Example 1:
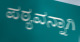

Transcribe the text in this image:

ಪಠ್ಯವನ್ನಾಗಿ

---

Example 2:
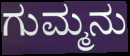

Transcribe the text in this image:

ಗುಮ್ಮನು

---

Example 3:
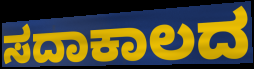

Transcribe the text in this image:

ಸದಾಕಾಲದ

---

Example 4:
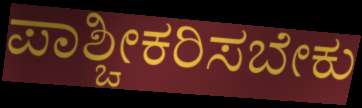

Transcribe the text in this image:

ಪಾಶ್ಚೀಕರಿಸಬೇಕು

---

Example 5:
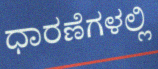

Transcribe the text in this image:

ಧಾರಣೆಗಳಲ್ಲಿ